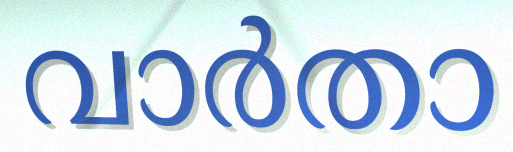
വാർതാ